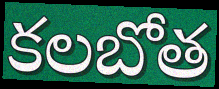
కలబోత